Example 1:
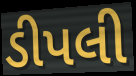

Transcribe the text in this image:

ડીપલી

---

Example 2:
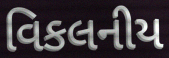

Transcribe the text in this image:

વિકલનીય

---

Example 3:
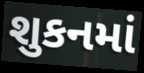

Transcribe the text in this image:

શુકનમાં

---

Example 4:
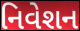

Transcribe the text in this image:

નિવેશન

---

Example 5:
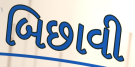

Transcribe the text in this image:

બિછાવી